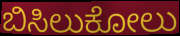
ಬಿಸಿಲುಕೋಲು